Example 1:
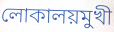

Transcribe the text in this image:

লোকালয়মুখী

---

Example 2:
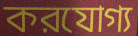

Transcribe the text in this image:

করযোগ্য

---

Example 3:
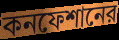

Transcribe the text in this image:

কনফেশানের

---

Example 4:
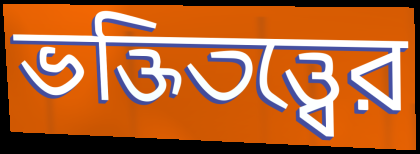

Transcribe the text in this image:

ভক্তিতত্ত্বের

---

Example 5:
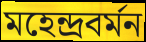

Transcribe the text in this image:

মহেন্দ্রবর্মন